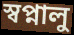
স্বপ্নালু